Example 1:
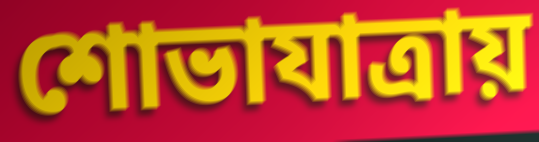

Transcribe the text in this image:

শোভাযাত্রায়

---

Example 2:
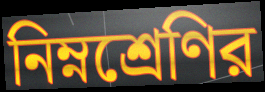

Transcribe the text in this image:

নিম্নশ্রেণির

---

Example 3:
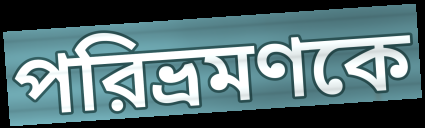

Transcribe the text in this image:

পরিভ্রমণকে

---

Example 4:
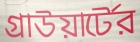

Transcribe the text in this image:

গ্রাউয়ার্টের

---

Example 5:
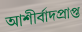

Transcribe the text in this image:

আশীর্বাদপ্রাপ্ত